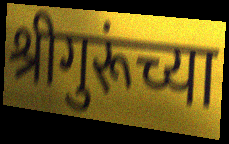
श्रीगुरूंच्या